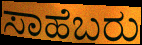
ಸಾಹೆಬರು